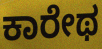
ಕಾರೇಥ